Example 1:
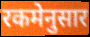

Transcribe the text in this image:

रकमेनुसार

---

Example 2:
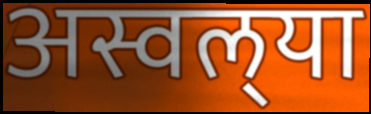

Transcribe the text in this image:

अस्वल्या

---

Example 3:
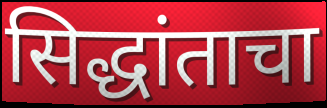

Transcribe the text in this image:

सिद्धांताचा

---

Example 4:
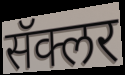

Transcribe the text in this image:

सॅक्लर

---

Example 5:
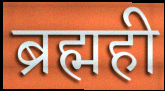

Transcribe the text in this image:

ब्रह्मही